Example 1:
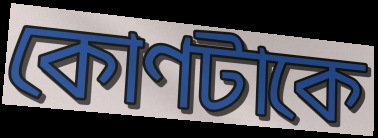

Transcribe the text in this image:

কোণটাকে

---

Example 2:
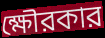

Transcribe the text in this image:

ক্ষৌরকার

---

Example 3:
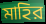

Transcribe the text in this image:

মাহির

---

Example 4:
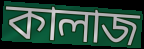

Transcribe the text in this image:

কালাজ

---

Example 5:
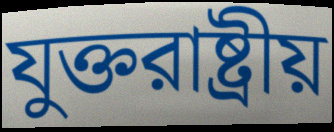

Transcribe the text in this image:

যুক্তরাষ্ট্রীয়